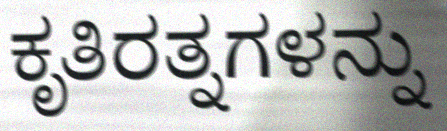
ಕೃತಿರತ್ನಗಳನ್ನು